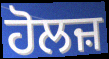
ਹੋਲਜ਼